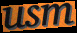
usm